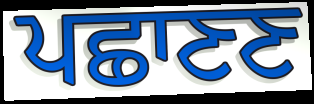
ਪਛਾਣਣ